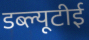
डब्ल्यूटीई